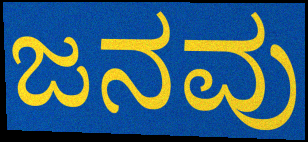
ಜನವು